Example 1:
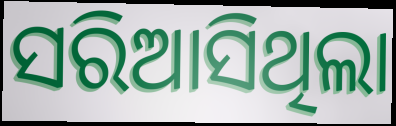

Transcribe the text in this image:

ସରିଆସିଥିଲା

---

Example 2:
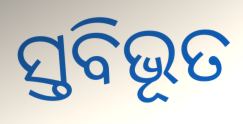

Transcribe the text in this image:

ସ୍ତବିଭୂତ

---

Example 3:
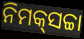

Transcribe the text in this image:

ନିମକ୍‍ସଚ୍ଚା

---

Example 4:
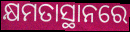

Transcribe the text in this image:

କ୍ଷମତାସ୍ଥାନରେ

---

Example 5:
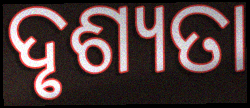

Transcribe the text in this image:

ଦୃଶ୍ୟତା